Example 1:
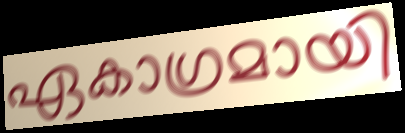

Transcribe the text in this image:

ഏകാഗ്രമായി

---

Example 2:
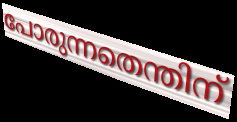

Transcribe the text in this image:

പോരുന്നതെന്തിന്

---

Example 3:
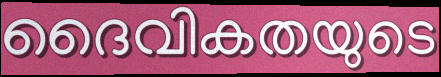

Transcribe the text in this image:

ദൈവികതയുടെ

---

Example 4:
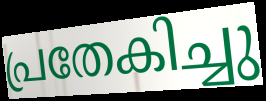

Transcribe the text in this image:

പ്രതേകിച്ചു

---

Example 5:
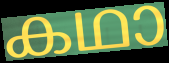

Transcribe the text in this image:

കഥാ